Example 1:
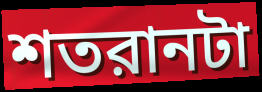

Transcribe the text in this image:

শতরানটা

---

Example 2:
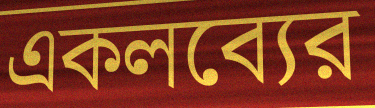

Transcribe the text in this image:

একলব্যের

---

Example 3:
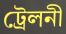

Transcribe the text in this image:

ট্রেলনী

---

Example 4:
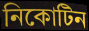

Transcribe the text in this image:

নিকোটিন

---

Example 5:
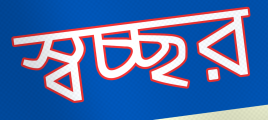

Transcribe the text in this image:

স্বচ্ছর